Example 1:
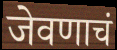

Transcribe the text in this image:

जेवणाचं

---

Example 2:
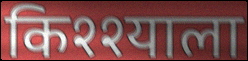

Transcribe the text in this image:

किश्श्याला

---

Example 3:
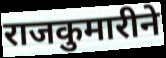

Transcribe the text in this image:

राजकुमारीने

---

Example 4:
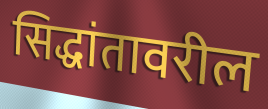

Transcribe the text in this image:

सिद्धांतावरील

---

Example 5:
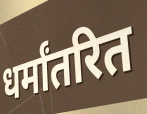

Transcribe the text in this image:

धर्मांतरित